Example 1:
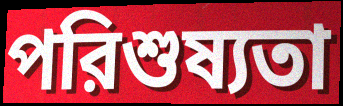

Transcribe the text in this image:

পরিশুষ্যতা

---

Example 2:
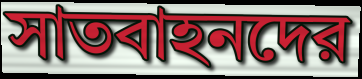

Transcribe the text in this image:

সাতবাহনদের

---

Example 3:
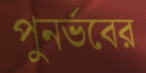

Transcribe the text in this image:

পুনর্ভবের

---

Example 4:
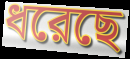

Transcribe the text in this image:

ধরেছে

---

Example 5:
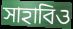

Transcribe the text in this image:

সাহাবিও